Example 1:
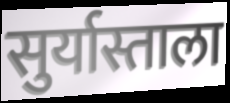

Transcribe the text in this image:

सुर्यास्ताला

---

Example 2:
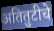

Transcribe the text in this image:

अतितुटीचे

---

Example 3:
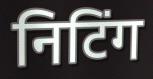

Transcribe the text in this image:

निटिंग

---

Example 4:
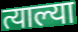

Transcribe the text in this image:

त्याल्या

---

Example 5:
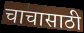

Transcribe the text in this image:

चाचासाठी